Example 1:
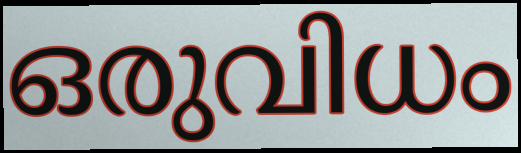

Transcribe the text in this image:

ഒരുവിധം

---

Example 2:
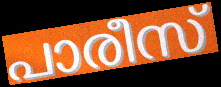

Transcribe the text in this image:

പാരീസ്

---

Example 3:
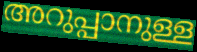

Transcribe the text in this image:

അറുപ്പാനുള്ള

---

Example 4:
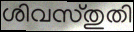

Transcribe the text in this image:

ശിവസ്തുതി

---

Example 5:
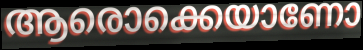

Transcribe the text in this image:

ആരൊക്കെയാണോ